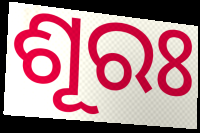
ଶୂରଃ